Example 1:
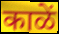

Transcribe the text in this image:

काळें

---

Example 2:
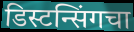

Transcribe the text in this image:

डिस्टन्सिंगचा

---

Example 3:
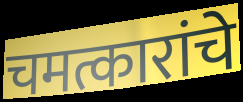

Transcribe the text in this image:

चमत्कारांचे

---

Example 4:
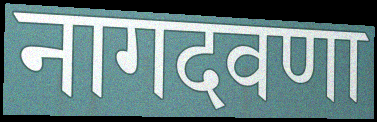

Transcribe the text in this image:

नागदवणा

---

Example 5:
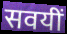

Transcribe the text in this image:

सवयीं